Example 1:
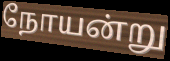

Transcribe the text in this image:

நோயன்று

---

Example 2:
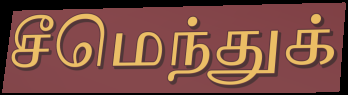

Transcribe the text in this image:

சீமெந்துக்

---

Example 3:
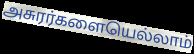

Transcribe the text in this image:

அசுரர்களையெல்லாம்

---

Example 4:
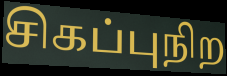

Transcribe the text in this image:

சிகப்புநிற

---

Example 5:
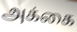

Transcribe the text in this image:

அக்கை